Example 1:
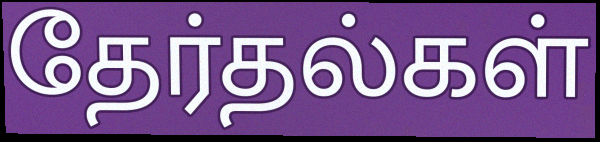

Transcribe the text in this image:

தேர்தல்கள்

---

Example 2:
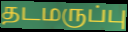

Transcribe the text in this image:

தடமருப்பு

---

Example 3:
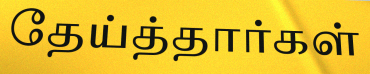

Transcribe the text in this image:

தேய்த்தார்கள்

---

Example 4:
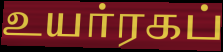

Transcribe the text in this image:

உயர்ரகப்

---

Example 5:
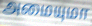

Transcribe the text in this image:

அமையுமா